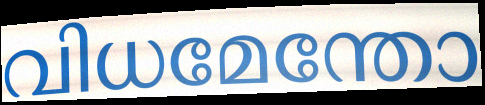
വിധമേന്തോ